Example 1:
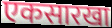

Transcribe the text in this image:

एकसारखा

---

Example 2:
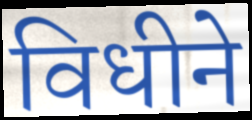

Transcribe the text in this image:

विधीने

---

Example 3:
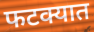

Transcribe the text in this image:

फटक्यात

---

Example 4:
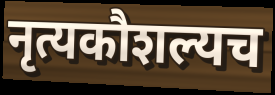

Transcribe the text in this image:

नृत्यकौशल्यच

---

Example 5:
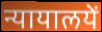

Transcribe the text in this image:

न्यायालयें